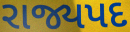
રાજ્યપદ